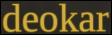
deokar